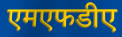
एमएफडीए